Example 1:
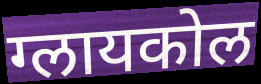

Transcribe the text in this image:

ग्लायकोल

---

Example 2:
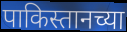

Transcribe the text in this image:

पाकिस्तानच्या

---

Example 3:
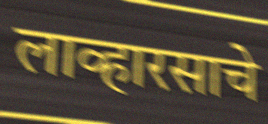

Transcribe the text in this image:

लाव्हारसाचे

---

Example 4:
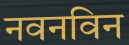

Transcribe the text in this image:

नवनविन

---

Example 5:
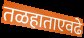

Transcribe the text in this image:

तळहाताएवढे